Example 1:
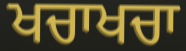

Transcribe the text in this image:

ਖਚਾਖਚਾ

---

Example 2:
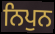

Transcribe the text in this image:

ਨਿਪੁਨ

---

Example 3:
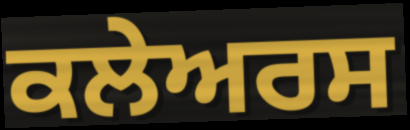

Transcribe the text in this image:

ਕਲੇਅਰਸ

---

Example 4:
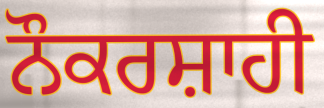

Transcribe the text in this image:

ਨੌਕਰਸ਼ਾਹੀ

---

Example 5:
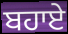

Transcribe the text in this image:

ਬਹਾਏ